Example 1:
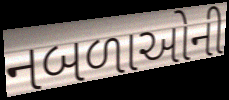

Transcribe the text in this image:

નબળાઓની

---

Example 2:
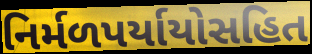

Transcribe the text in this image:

નિર્મળપર્યાયોસહિત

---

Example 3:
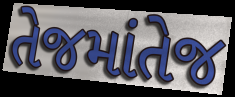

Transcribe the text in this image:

તેજમાંતેજ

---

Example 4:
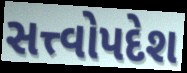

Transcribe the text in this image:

સત્ત્વોપદેશ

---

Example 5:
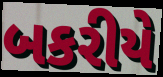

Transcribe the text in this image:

બકરીયે